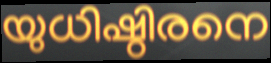
യുധിഷ്ഠിരനെ